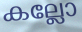
കല്ലോ